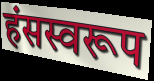
हंसस्वरूप